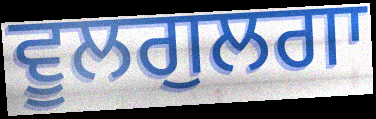
ਵੂਲਗੁਲਗਾ